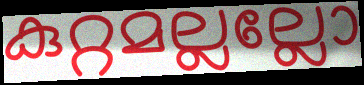
കുറ്റമല്ലല്ലോ